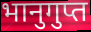
भानुगुप्त